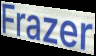
Frazer